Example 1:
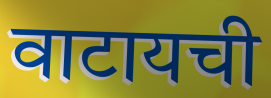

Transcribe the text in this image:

वाटायची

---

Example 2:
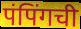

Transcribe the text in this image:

पंपिंगची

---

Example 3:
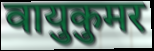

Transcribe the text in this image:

वायुकुमर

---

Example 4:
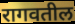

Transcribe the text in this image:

रागवतील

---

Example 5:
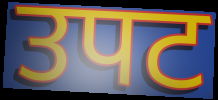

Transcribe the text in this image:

उपट